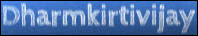
Dharmkirtivijay